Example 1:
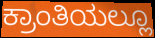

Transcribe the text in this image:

ಕ್ರಾಂತಿಯಲ್ಲೂ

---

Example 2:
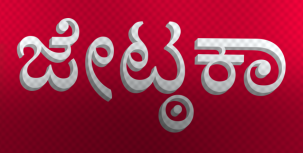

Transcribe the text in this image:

ಜೇಟ್ಠಕಾ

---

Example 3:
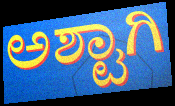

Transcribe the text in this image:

ಅಶ್ಟಾಗಿ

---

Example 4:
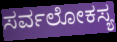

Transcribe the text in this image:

ಸರ್ವಲೋಕಸ್ಯ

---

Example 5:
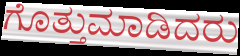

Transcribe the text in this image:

ಗೊತ್ತುಮಾಡಿದರು